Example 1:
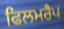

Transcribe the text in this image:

ਫਿਲਮਰੈਪ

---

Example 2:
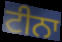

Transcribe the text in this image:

ਟੀਨਾ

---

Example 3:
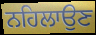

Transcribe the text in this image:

ਨਹਿਲਾਉਣ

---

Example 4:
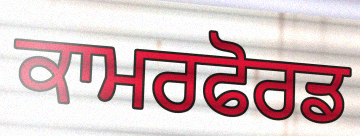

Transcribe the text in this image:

ਕਾਮਰਫੋਰਡ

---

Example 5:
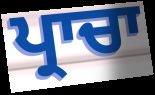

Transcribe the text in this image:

ਪ੍ਰਾਚਾ